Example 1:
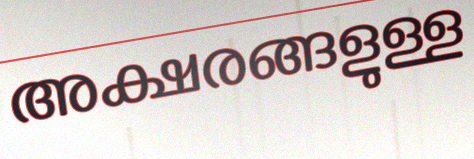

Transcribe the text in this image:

അക്ഷരങ്ങളുള്ള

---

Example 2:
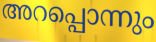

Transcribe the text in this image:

അറപ്പൊന്നും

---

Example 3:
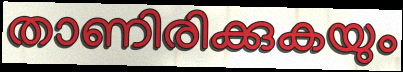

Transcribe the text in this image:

താണിരിക്കുകയും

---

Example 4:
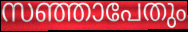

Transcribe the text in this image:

സഞ്ഞാപേതും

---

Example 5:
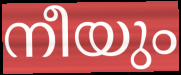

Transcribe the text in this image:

നീയും